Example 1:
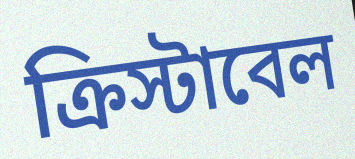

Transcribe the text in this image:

ক্রিস্টাবেল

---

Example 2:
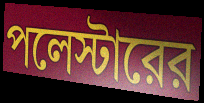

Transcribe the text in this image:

পলেস্টারের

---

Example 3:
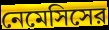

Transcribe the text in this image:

নেমেসিসের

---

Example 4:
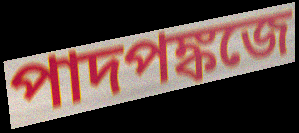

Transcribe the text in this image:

পাদপঙ্কজে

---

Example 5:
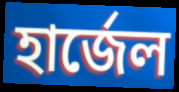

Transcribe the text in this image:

হার্জেল